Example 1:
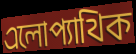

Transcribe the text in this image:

এলোপ্যাথিক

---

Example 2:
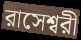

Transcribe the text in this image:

রাসেশ্বরী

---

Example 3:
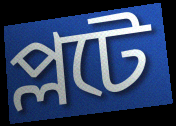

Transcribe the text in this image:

প্লটে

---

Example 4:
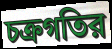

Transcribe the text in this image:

চক্রগতির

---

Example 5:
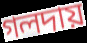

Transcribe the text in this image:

গলদায়